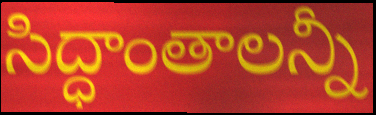
సిద్ధాంతాలన్నీ